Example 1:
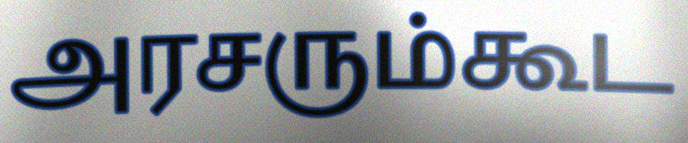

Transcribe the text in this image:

அரசரும்கூட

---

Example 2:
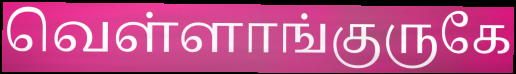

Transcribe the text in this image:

வெள்ளாங்குருகே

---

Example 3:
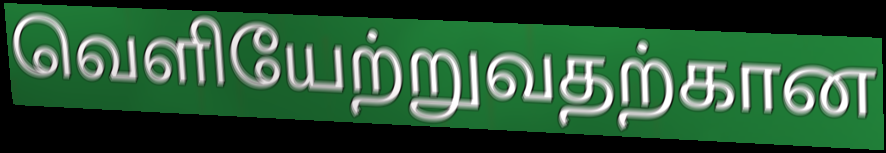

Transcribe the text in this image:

வெளியேற்றுவதற்கான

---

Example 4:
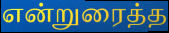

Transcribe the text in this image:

என்றுரைத்த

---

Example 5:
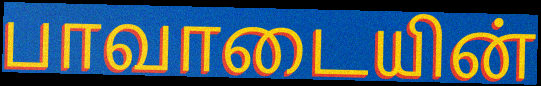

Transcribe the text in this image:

பாவாடையின்